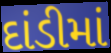
દાંડીમાં